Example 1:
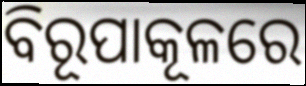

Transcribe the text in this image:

ବିରୂପାକୂଳରେ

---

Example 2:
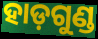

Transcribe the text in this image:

ହାଡ଼ଗୁଣ୍ଡ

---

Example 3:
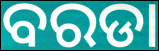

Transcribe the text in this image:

ବରଡା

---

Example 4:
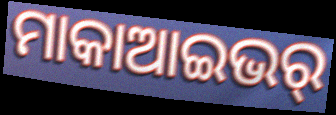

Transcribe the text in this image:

ମାକାଆଇଭର୍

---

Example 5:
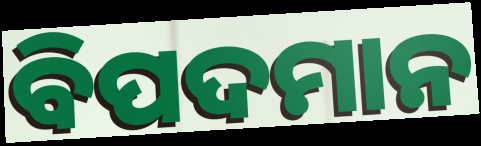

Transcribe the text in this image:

ବିପଦମାନ